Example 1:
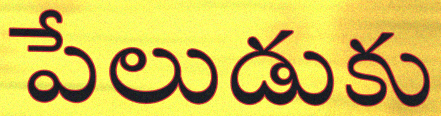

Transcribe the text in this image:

పేలుడుకు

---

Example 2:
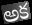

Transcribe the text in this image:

అక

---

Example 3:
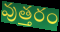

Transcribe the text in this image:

వుత్తరం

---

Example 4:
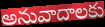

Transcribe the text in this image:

అనువాదాలకు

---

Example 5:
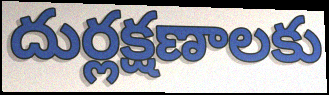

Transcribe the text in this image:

దుర్లక్షణాలకు